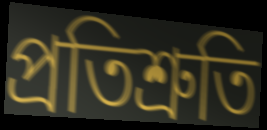
প্রতিশ্রুতি